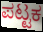
ಪಟ್ಟಕ